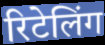
रिटेलिंग